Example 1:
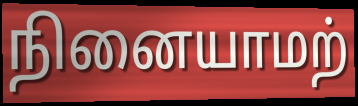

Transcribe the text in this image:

நினையாமற்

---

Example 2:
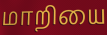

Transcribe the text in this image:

மாறியை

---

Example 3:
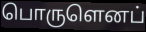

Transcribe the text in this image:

பொருளெனப்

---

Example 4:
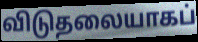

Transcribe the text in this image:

விடுதலையாகப்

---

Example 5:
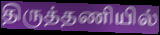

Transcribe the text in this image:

திருத்தணியில்